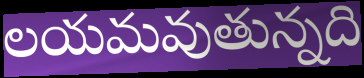
లయమవుతున్నది